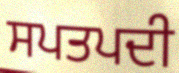
ਸਪਤਪਦੀ